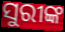
ସୁରୀଙ୍କ